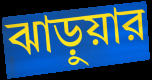
ঝাড়ুয়ার